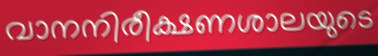
വാനനിരീക്ഷണശാലയുടെ